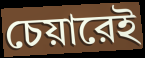
চেয়ারেই